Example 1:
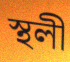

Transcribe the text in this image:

স্থলী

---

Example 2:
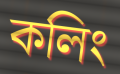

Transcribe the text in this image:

কলিং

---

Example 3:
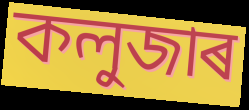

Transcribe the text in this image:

কলুজাৰ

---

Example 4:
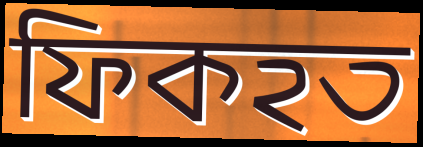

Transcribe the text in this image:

ফিকহত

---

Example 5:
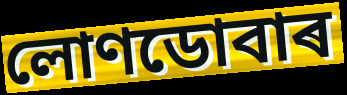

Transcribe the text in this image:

লোণডোবাৰ